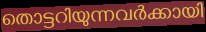
തൊട്ടറിയുന്നവർക്കായി